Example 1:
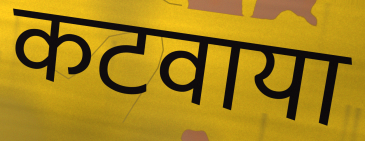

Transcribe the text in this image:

कटवाया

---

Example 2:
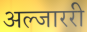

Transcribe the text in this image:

अल्जाररी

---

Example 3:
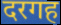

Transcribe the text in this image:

दरगह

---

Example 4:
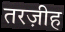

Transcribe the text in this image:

तरज़ीह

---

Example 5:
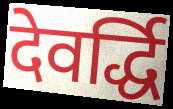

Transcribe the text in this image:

देवर्द्धि